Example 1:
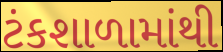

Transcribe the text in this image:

ટંકશાળામાંથી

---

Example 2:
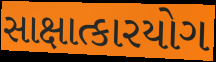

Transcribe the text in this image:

સાક્ષાત્કારયોગ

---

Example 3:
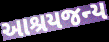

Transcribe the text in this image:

આશ્રયજન્ય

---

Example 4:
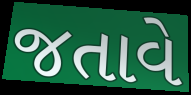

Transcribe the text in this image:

જતાવે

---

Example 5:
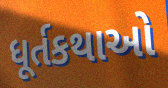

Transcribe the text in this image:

ધૂર્તકથાઓ